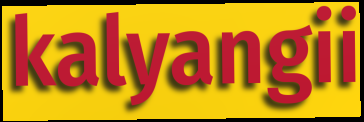
kalyangii